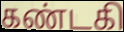
கண்டகி